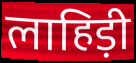
लाहिड़ी